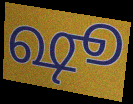
ஷூ